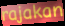
rajakan